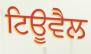
ਟਿਊਵੈਲ